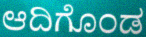
ಆದಿಗೊಂಡ